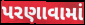
પરણાવામાં